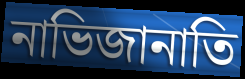
নাভিজানাতি